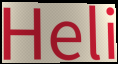
Heli